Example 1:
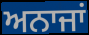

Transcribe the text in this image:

ਅਨਾਜਾਂ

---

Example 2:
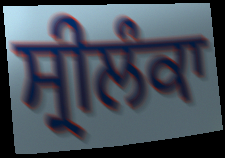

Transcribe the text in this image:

ਸ੍ਰੀਲੰਕਾ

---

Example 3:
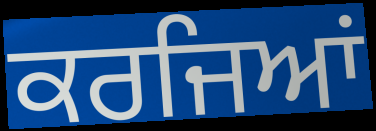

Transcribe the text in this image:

ਕਰਜਿਆਂ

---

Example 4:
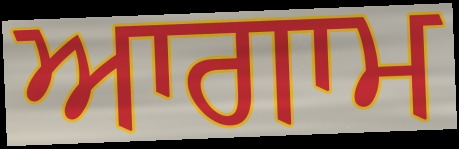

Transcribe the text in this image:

ਆਗਾਮ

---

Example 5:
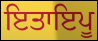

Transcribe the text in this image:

ਇਤਾਇਪੂ